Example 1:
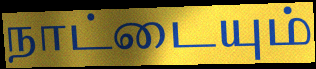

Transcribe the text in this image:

நாட்டையும்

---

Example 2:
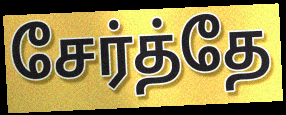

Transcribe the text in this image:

சேர்த்தே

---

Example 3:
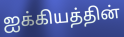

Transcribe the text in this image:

ஐக்கியத்தின்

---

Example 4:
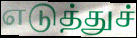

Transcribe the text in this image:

எடுத்துச்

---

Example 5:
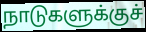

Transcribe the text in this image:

நாடுகளுக்குச்